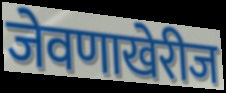
जेवणाखेरीज